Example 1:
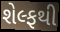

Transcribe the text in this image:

શેલ્ફથી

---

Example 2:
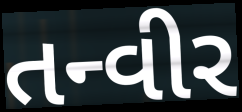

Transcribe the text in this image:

તન્વીર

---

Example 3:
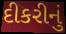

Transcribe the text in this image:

દીકરીનું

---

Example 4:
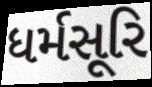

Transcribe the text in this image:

ધર્મસૂરિ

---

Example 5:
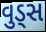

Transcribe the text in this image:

વુડ્સ